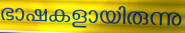
ഭാഷകളായിരുന്നു